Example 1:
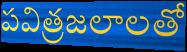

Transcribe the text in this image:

పవిత్రజలాలతో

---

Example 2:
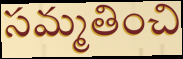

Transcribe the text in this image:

సమ్మతించి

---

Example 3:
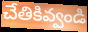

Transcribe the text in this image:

చేతికివ్వండి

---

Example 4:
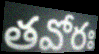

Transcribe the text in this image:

తవోరః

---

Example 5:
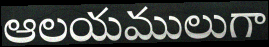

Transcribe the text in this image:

ఆలయములుగా